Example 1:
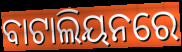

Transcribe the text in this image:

ବାଟାଲିୟନରେ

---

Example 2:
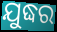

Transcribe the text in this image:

ଯୁଦ୍ଧର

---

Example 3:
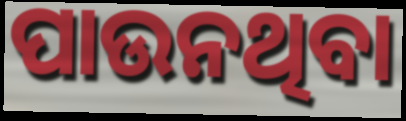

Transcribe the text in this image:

ପାଉନଥିବା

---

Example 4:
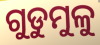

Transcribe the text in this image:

ଗୁଡୁମୁଳୁ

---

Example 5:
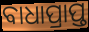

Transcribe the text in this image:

ବାଧାପ୍ରାପ୍ତ